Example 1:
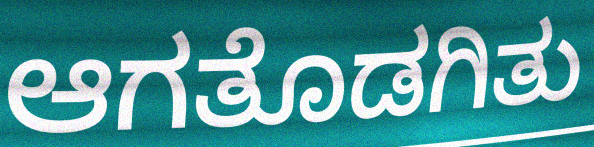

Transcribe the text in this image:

ಆಗತೊಡಗಿತು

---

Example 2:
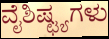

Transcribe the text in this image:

ವೈಶಿಷ್ಟ್ಯಗಳು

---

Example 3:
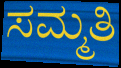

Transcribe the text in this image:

ಸಮ್ಮತಿ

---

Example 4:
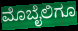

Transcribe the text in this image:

ಮೊಬೈಲಿಗೂ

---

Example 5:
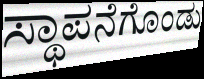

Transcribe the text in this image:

ಸ್ಥಾಪನೆಗೊಂಡು